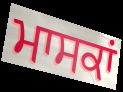
ਮਾਸਕਾਂ